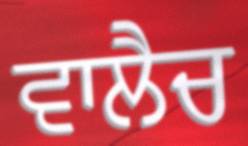
ਵਾਲੈਚ